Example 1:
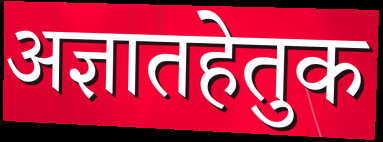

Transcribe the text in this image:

अज्ञातहेतुक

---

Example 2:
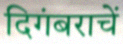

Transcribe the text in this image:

दिगंबराचें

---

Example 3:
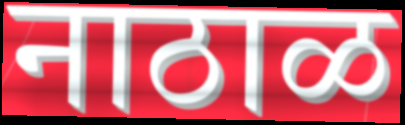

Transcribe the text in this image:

नाठाळ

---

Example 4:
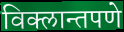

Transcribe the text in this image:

विक्लान्तपणे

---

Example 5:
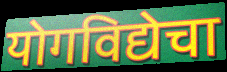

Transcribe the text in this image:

योगविद्येचा